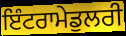
ਇੰਟਰਾਮੇਡੁਲਰੀ